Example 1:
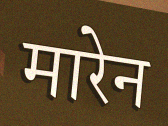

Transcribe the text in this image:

मारेन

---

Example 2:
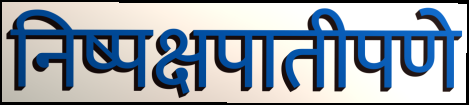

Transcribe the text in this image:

निष्पक्षपातीपणे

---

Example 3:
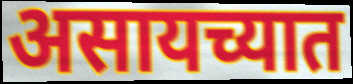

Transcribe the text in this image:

असायच्यात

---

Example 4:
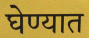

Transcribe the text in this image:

घेण्यात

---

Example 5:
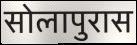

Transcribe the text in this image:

सोलापुरास